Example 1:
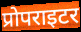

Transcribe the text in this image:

प्रोपराइटर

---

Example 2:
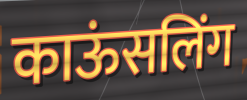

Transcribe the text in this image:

काऊंसलिंग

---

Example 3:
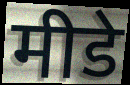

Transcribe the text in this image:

मीडे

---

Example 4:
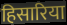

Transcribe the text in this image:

हिसारिया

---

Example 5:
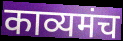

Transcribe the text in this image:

काव्यमंच